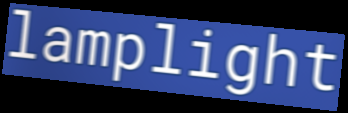
lamplight